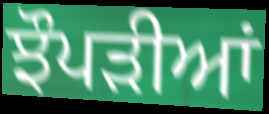
ਝੌਪੜੀਆਂ